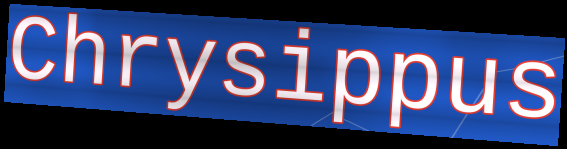
Chrysippus